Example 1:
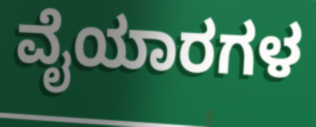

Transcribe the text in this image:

ವೈಯಾರಗಳ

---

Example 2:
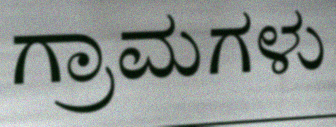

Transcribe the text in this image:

ಗ್ರಾಮಗಳು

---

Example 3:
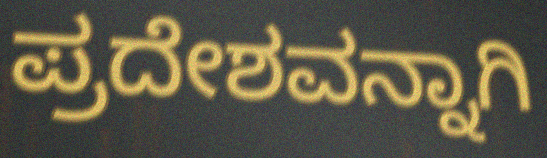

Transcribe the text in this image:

ಪ್ರದೇಶವನ್ನಾಗಿ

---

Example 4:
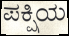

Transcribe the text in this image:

ಪಕ್ಷಿಯ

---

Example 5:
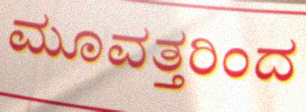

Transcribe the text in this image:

ಮೂವತ್ತರಿಂದ